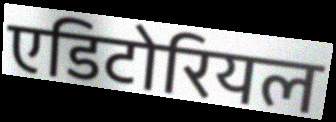
एडिटोरियल